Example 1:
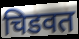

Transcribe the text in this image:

चिडवत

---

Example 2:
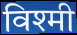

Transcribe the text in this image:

विश्मी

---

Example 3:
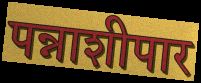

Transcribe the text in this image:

पन्नाशीपार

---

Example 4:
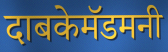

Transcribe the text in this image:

दाबकेमॅडमनी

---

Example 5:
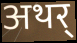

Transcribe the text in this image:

अथर्